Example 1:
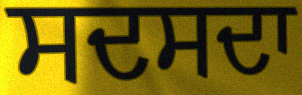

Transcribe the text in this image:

ਸਦਸਦਾ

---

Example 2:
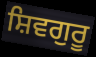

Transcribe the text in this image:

ਸ਼ਿਵਗੁਰੂ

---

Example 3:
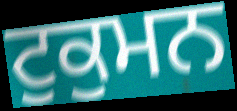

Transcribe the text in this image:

ਟੁਕੁਮਨ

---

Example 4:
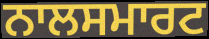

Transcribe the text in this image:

ਨਾਲਸਮਾਰਟ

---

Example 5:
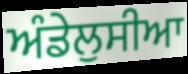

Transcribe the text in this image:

ਅੰਡੇਲੁਸੀਆ